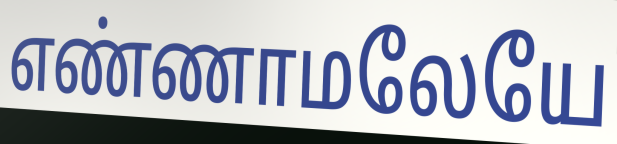
எண்ணாமலேயே